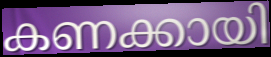
കണക്കായി